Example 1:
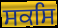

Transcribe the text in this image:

ਸਕਸਿ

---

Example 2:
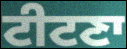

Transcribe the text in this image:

ਟੀਟਣਾ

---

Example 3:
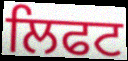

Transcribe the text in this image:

ਲਿਫਟ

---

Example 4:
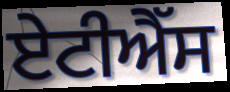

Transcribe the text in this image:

ਏਟੀਐੱਸ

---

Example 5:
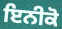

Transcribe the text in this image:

ਇਨੀਕੋ